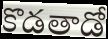
కొడతాడో